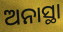
ଅନାସ୍ଥା